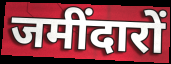
जमींदारों